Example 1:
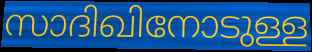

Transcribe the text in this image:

സാദിഖിനോടുള്ള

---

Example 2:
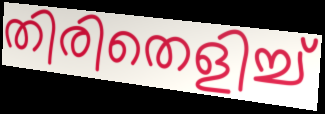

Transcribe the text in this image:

തിരിതെളിച്ച്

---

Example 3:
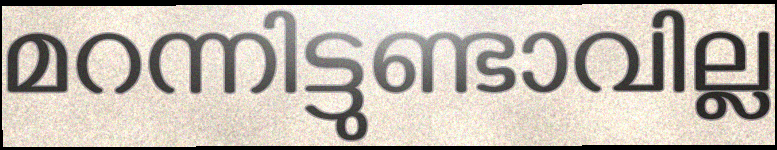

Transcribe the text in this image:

മറന്നിട്ടുണ്ടാവില്ല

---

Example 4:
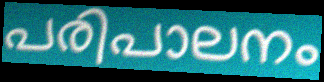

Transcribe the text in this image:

പരിപാലനം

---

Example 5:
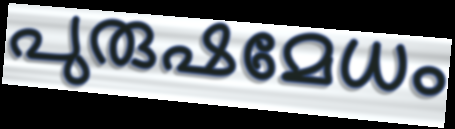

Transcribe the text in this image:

പുരുഷമേധം